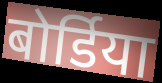
बोर्डिया